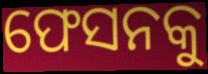
ଫେସନକୁ